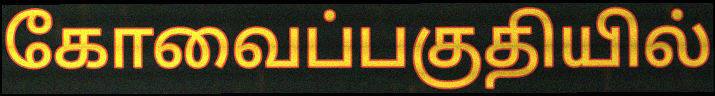
கோவைப்பகுதியில்